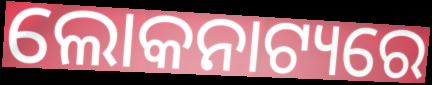
ଲୋକନାଟ୍ୟରେ